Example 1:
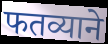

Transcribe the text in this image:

फतव्याने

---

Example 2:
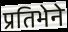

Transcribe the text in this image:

प्रतिभेने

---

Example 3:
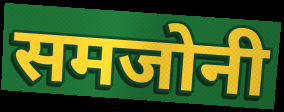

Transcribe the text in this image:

समजोनी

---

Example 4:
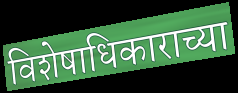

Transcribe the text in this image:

विशेषाधिकाराच्या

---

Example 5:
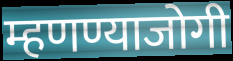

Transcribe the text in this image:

म्हणण्याजोगी